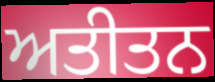
ਅਤੀਤਨ